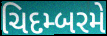
ચિદમ્બરમે